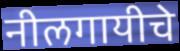
नीलगायीचे